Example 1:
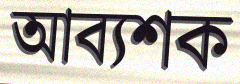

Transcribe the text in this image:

আব্যশক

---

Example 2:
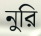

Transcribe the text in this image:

নুরি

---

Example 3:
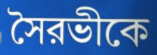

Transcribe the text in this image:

সৈরভীকে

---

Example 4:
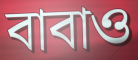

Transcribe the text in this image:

বাবাও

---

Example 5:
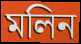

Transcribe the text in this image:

মলিন